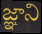
జ్ఞాని